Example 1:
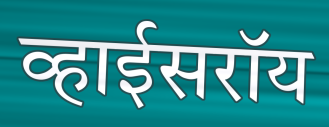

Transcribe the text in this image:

व्हाईसरॉय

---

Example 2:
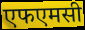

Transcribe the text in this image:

एफएमसी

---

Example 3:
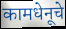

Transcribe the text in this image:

कामधेनूचे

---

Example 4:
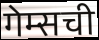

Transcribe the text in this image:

गेम्सची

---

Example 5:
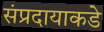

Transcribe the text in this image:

संप्रदायाकडे